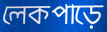
লেকপাড়ে